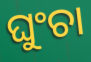
ଘୁଂଚା